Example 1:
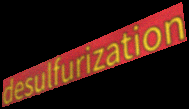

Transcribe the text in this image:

desulfurization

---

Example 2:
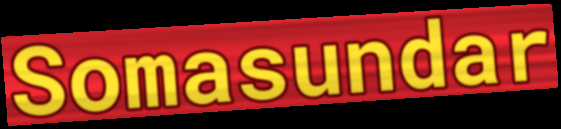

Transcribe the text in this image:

Somasundar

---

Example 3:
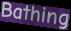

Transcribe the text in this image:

Bathing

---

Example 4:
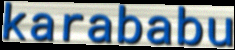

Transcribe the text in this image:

karababu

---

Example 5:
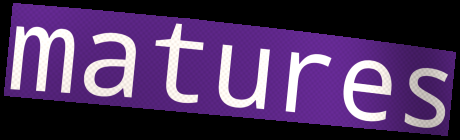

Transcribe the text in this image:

matures